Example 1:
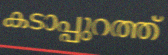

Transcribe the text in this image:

കടാപ്പുറത്ത്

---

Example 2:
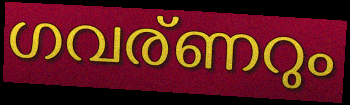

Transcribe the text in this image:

ഗവര്ണറും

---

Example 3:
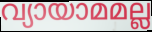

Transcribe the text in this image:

വ്യായാമമല്ല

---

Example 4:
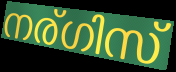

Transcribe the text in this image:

നര്ഗിസ്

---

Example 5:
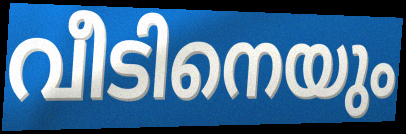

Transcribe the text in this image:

വീടിനെയും